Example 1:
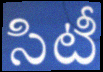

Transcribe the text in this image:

సిటీ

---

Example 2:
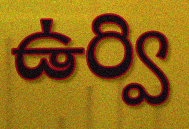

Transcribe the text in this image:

ఉర్వి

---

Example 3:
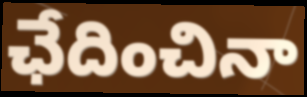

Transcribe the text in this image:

ఛేదించినా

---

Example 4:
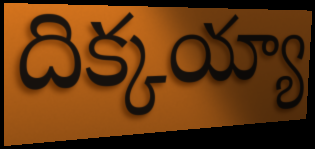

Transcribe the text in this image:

దిక్కయ్యా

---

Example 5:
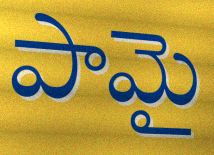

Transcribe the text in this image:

పామై